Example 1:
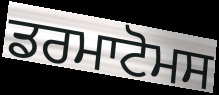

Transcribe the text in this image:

ਡਰਮਾਟੋਮਸ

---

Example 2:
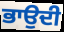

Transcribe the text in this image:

ਭਾਉਦੀ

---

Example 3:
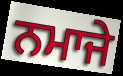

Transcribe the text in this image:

ਨਮਾਜੇ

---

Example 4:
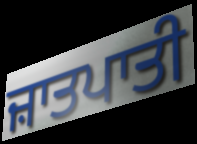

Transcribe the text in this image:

ਜ਼ਾਤਪਾਤੀ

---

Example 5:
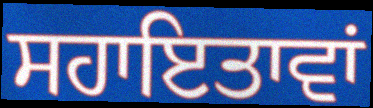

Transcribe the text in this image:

ਸਹਾਇਤਾਵਾਂ